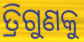
ତ୍ରିଗୁଣକୁ